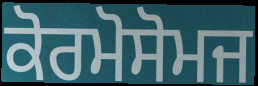
ਕੋਰਮੋਸੋਮਜ